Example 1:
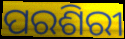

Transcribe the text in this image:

ପରଶିରୀ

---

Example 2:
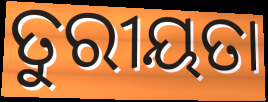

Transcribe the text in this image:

ତୁରୀୟତା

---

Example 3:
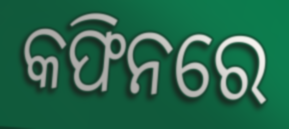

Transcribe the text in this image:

କଫିନରେ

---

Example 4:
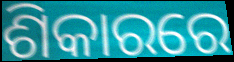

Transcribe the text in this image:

ଶିକାରରେ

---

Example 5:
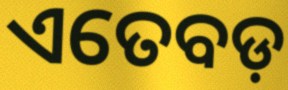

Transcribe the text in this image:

ଏତେବଡ଼